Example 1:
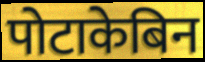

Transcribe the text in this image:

पोटाकेबिन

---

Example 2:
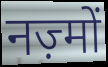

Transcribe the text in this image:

नज़्मों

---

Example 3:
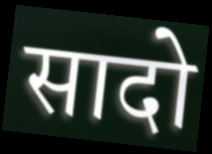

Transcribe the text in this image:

सादो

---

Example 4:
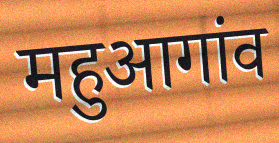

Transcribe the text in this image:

महुआगांव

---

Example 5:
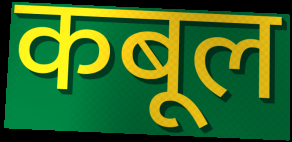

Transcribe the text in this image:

कबूल